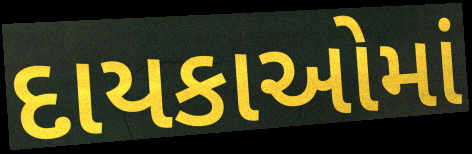
દાયકાઓમાં